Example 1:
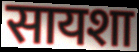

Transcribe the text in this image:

सायशा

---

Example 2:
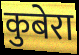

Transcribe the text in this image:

कुबेरा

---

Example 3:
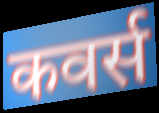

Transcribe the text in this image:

कवर्स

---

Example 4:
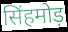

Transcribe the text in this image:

सिंहमोड़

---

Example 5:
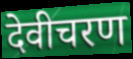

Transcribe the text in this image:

देवीचरण